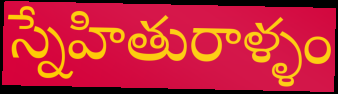
స్నేహితురాళ్ళం